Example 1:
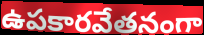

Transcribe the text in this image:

ఉపకారవేతనంగా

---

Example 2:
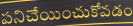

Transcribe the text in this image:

పనిచేయించుకోవడం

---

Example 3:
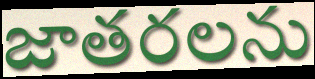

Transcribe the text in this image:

జాతరలను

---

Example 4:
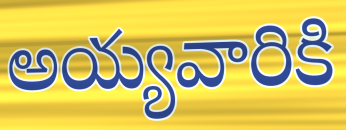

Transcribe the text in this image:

అయ్యవారికి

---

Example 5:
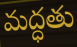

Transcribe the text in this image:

మద్ధతు